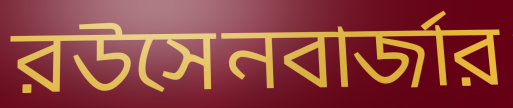
রউসেনবার্জার